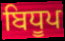
ਬਿਧੂਪ